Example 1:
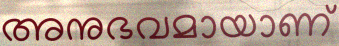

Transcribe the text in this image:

അനുഭവമായാണ്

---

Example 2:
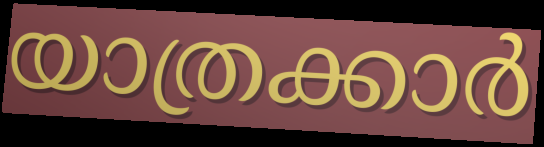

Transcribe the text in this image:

യാത്രക്കാർ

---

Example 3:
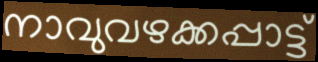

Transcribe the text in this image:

നാവുവഴക്കപ്പാട്ട്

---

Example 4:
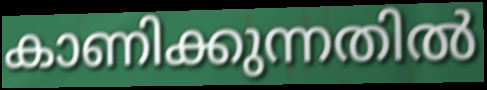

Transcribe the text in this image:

കാണിക്കുന്നതിൽ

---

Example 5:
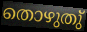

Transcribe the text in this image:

തൊഴുതു്